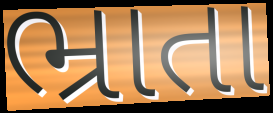
ભ્રાતા